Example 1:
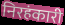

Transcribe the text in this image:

निरहंकारी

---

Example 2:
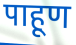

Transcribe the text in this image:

पाहूण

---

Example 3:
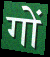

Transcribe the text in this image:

गों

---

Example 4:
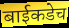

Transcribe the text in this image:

बाईकडेच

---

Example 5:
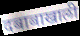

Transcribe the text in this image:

दबाबाखाली